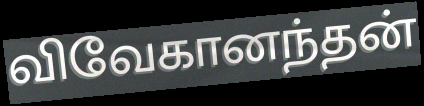
விவேகானந்தன்